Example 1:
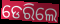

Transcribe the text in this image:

ଡେରିଲେ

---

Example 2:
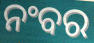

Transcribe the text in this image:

ନଂବର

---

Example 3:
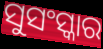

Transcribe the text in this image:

ସୁସଂସ୍କାର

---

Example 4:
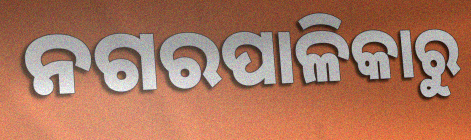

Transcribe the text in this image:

ନଗରପାଳିକାରୁ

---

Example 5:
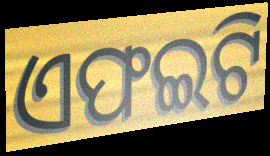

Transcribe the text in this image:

ଏଫଇଟି